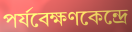
পর্যবেক্ষণকেন্দ্রে